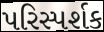
પરિસ્પર્શક